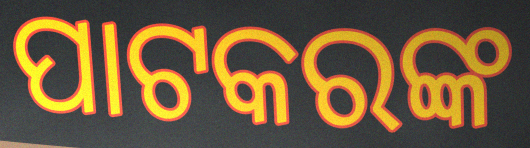
ପାଟକରଙ୍କ